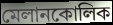
মেলানকোলিক